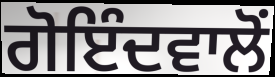
ਗੋਇੰਦਵਾਲੋਂ